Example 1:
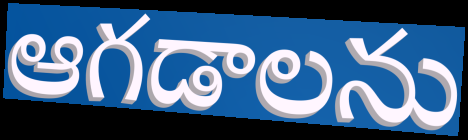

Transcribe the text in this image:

ఆగడాలను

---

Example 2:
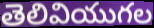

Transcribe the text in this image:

తెలివియుగల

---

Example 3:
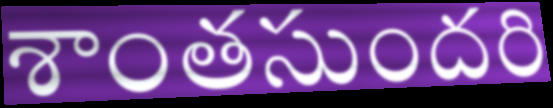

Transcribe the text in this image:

శాంతసుందరి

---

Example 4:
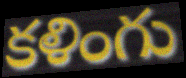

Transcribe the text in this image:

కళింగు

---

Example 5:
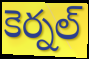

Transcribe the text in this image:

కెర్నల్